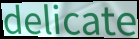
delicate